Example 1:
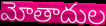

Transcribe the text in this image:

మోతాదుల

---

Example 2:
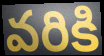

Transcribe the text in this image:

వరికి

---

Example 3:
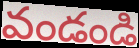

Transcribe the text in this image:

వండండి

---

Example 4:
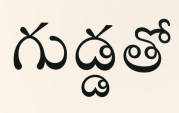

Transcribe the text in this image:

గుడ్డతో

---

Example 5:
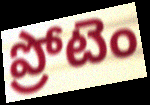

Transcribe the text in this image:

ప్రోటెం